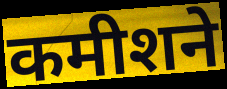
कमीशने